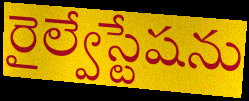
రైల్వేస్టేషను